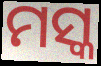
ମସ୍କ